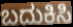
ಬದುಕಿಸಿ